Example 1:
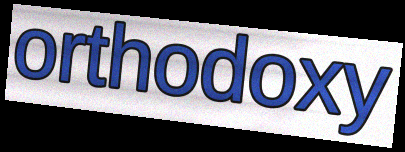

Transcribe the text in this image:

orthodoxy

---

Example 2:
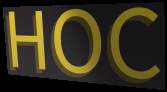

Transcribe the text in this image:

HOC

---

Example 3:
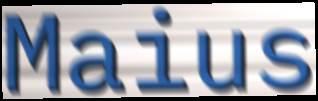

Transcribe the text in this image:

Maius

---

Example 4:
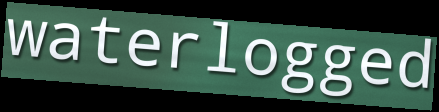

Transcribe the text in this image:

waterlogged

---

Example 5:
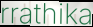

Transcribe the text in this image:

rrathika